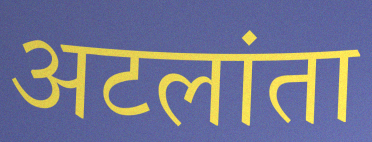
अटलांता